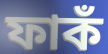
ফাকঁ